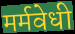
मर्मवेधी